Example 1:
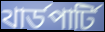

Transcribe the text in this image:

থার্ডপার্টি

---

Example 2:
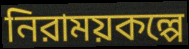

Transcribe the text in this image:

নিরাময়কল্পে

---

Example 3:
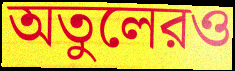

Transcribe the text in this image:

অতুলেরও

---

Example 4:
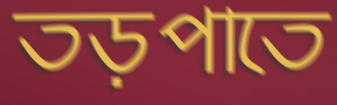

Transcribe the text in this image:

তড়পাতে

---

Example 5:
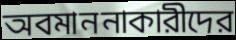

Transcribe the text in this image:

অবমাননাকারীদের